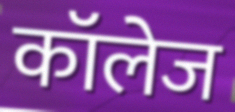
कॉलेज